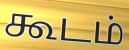
கூடம்